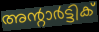
അന്റാർട്ടിക്